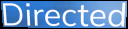
Directed